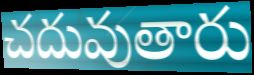
చదువుతారు